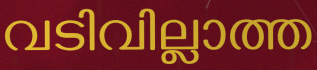
വടിവില്ലാത്ത